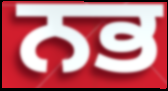
ਨਭ